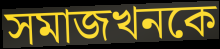
সমাজখনকে